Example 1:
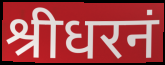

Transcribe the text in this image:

श्रीधरनं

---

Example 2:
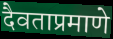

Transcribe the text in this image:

दैवताप्रमाणे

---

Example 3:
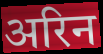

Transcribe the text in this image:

अरिन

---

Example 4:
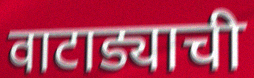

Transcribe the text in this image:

वाटाड्याची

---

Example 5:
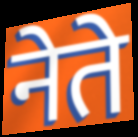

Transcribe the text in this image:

नेते